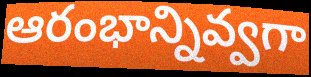
ఆరంభాన్నివ్వగా